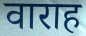
वाराह